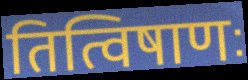
तित्विषाणः